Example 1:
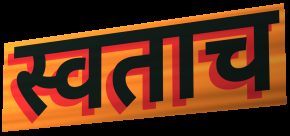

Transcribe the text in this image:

स्वताच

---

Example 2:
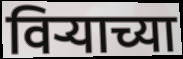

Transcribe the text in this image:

विर्‍याच्या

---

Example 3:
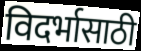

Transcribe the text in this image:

विदर्भासाठी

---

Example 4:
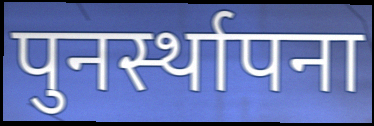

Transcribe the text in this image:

पुनर्स्थापना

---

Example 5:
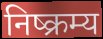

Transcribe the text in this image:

निष्क्रम्य